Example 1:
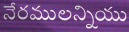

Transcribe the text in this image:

నేరములన్నియు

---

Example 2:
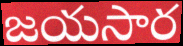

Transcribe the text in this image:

జయసార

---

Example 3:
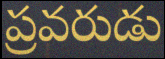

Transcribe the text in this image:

ప్రవరుడు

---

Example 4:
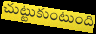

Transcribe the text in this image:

చుట్టుకుంటుంది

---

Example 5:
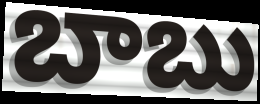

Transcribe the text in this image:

బాబు